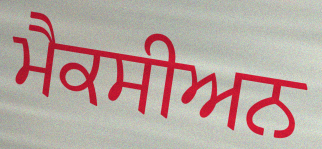
ਮੈਕਸੀਅਨ